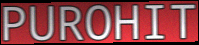
PUROHIT